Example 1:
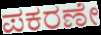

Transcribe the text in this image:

ಪಕರಣೇ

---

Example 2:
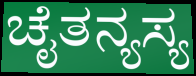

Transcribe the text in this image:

ಚೈತನ್ಯಸ್ಯ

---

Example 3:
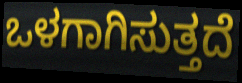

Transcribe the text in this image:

ಒಳಗಾಗಿಸುತ್ತದೆ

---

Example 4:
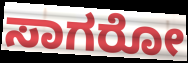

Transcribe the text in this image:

ಸಾಗರೋ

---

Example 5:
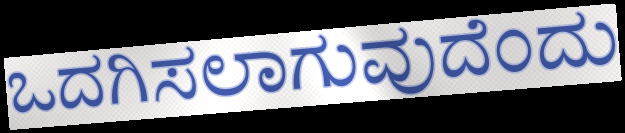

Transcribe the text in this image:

ಒದಗಿಸಲಾಗುವುದೆಂದು